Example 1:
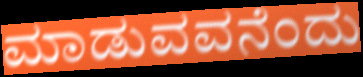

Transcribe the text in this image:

ಮಾಡುವವನೆಂದು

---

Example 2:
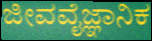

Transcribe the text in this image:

ಜೀವವೈಜ್ಞಾನಿಕ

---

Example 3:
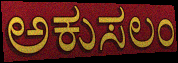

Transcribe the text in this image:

ಅಕುಸಲಂ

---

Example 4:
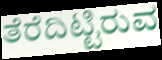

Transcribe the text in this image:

ತೆರೆದಿಟ್ಟಿರುವ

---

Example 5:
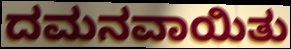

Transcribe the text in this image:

ದಮನವಾಯಿತು